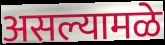
असल्यामळे